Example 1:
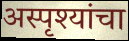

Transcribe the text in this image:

अस्पृश्यांचा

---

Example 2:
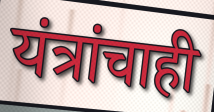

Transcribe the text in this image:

यंत्रांचाही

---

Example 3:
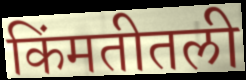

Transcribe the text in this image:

किंमतीतली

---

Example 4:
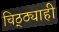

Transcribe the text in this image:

चिठ्ठ्याही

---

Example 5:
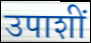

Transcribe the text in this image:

उपाशीं